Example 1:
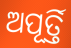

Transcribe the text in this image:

ଅପୂର୍ତ୍ତି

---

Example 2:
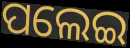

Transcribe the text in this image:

ପଲେଇ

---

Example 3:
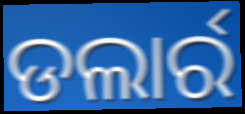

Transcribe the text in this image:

ଡଲାର୍ର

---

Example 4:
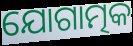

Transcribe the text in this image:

ଯୋଗାତ୍ମକ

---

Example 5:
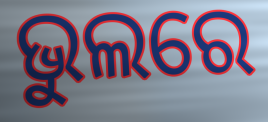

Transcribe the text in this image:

ଭୁଲରେ